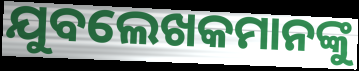
ଯୁବଲେଖକମାନଙ୍କୁ